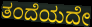
ತಂದೆಯದೇ